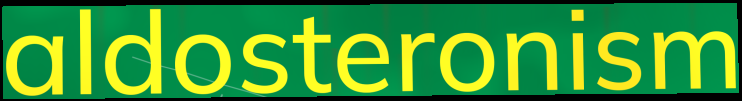
aldosteronism